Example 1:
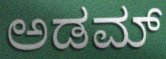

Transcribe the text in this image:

ಅಡಮ್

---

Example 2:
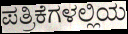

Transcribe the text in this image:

ಪತ್ರಿಕೆಗಳಲ್ಲಿಯ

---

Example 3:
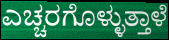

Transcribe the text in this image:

ಎಚ್ಚರಗೊಳ್ಳುತ್ತಾಳೆ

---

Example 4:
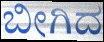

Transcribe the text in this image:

ಬೀಗಿದ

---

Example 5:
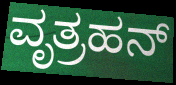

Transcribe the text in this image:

ವೃತ್ರಹನ್